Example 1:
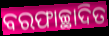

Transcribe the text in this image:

ବରଫାଚ୍ଛାଦିତ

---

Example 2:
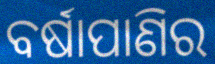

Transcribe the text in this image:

ବର୍ଷାପାଣିର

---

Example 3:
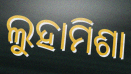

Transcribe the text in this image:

ଲୁହାମିଶା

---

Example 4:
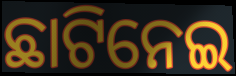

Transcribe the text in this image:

ଛାଟିନେଇ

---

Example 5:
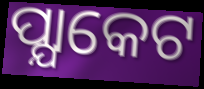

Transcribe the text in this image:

ପ୍ଯାକେଟ